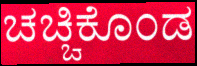
ಚಚ್ಚಿಕೊಂಡ